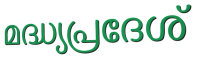
മദ്ധ്യപ്രദേശ്